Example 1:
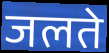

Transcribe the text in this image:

जलते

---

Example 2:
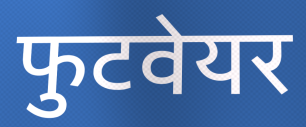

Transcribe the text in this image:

फुटवेयर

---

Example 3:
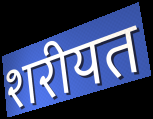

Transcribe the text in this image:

शरीयत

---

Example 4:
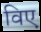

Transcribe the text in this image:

विए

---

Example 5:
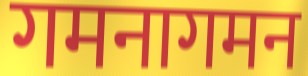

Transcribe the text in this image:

गमनागमन